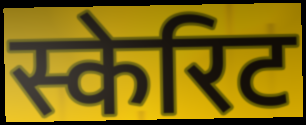
स्केरिट